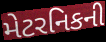
મેટરનિકની